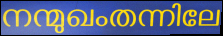
നന്മുഖംതന്നിലേ